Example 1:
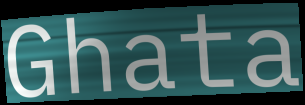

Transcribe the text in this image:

Ghata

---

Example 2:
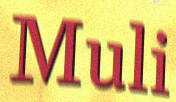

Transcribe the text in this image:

Muli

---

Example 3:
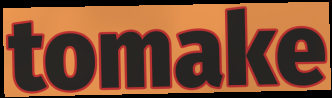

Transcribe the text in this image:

tomake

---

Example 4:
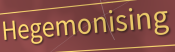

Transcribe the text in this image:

Hegemonising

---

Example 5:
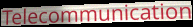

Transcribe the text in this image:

Telecommunication